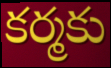
కర్మకు